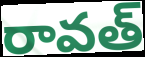
రావత్